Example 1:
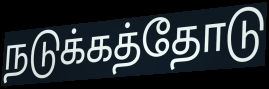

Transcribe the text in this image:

நடுக்கத்தோடு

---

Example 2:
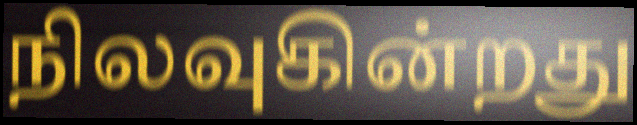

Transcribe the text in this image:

நிலவுகின்றது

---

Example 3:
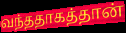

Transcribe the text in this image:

வந்ததாகத்தான்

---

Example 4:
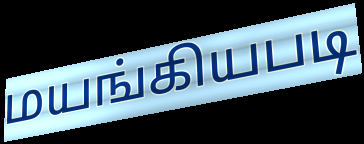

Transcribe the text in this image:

மயங்கியபடி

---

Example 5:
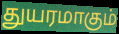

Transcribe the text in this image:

துயரமாகும்